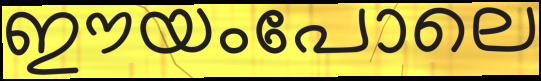
ഈയംപോലെ